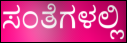
ಸಂತೆಗಳಲ್ಲಿ